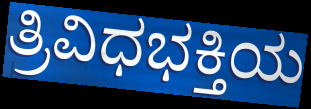
ತ್ರಿವಿಧಭಕ್ತಿಯ